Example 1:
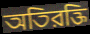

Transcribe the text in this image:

অতিরক্তি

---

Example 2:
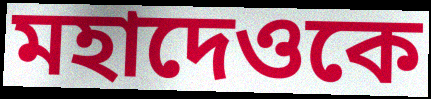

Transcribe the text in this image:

মহাদেওকে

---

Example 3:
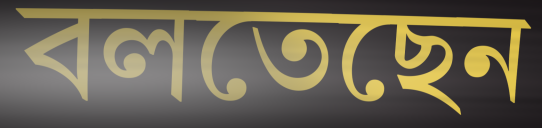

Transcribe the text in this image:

বলতেছেন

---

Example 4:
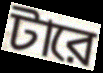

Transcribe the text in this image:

টারে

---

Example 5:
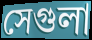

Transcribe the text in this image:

সেগুলা